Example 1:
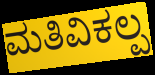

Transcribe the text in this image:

ಮತಿವಿಕಲ್ಪ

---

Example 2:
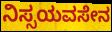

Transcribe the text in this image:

ನಿಸ್ಸಯವಸೇನ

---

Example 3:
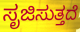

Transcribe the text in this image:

ಸೃಜಿಸುತ್ತದೆ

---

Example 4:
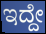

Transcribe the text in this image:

ಇದ್ದೇ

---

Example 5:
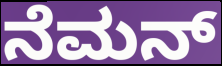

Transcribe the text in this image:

ನೆಮನ್